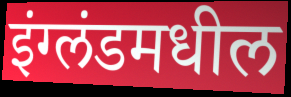
इंग्लंडमधील